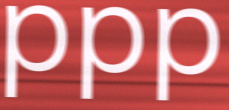
ppp